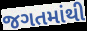
જગતમાંથી